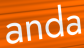
anda